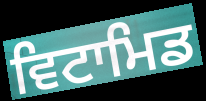
ਵਿਟਾਮਿਡ